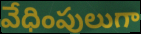
వేధింపులుగా